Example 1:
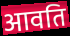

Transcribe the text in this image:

आवति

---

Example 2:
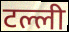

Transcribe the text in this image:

टल्ली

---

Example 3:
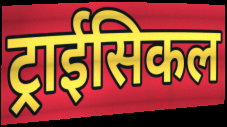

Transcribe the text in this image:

ट्राईसिकल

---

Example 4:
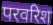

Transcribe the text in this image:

परवरिश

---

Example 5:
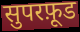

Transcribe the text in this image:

सुपरफ़ूड